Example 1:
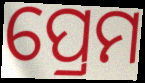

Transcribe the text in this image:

ପ୍ରେମ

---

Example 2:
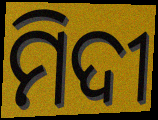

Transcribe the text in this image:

ମିଦୀ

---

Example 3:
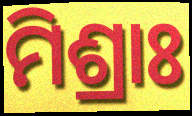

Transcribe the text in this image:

ମିଶ୍ରାଃ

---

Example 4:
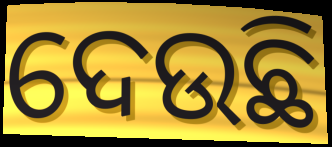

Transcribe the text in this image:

ଦେଉଛି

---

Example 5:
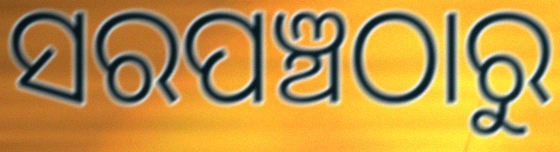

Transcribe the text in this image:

ସରପଞ୍ଚଠାରୁ